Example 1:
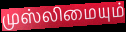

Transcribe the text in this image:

முஸ்லிமையும்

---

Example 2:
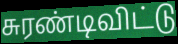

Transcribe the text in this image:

சுரண்டிவிட்டு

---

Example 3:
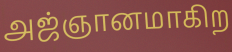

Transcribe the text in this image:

அஜ்ஞானமாகிற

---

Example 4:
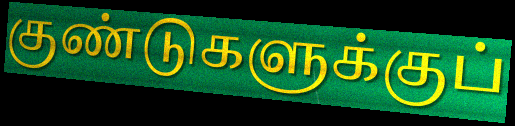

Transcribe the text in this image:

குண்டுகளுக்குப்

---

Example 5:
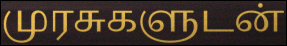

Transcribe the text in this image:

முரசுகளுடன்